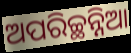
ଅପରିଚ୍ଛନ୍ନିଆ